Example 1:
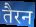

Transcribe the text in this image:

तैरन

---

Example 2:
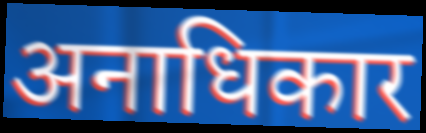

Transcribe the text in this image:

अनाधिकार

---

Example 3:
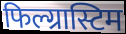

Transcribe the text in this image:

फिल्ग्रास्टिम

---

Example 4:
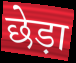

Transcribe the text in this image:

छेड़ा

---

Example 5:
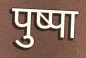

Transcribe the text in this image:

पुष्पा